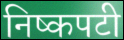
निष्कपटी